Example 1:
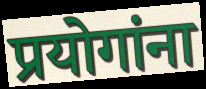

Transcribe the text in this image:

प्रयोगांना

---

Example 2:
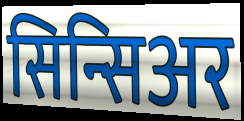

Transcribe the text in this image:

सिन्सिअर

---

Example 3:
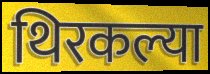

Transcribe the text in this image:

थिरकल्या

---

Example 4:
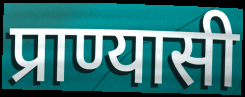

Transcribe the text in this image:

प्राण्यासी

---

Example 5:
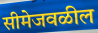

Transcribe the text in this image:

सीमेजवळील